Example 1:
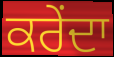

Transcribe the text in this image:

ਕਰੇਂਦਾ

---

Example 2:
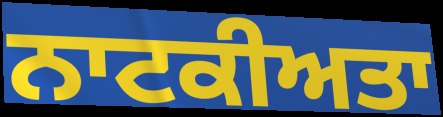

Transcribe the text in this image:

ਨਾਟਕੀਅਤਾ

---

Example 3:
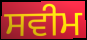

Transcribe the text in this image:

ਸਵੀਮ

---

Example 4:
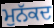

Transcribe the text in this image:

ਮੁਨੱਕਦ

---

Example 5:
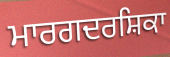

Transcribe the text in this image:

ਮਾਰਗਦਰਸ਼ਿਕਾ